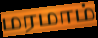
மரமாம்